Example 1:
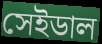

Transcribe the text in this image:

সেইডাল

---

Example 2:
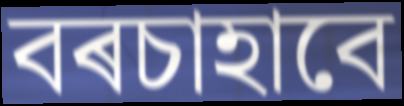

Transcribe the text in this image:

বৰচাহাবে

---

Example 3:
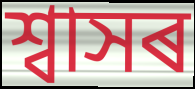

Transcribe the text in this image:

শ্বাসৰ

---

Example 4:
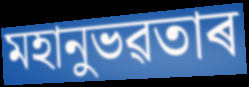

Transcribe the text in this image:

মহানুভৱতাৰ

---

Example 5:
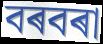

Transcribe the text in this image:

বৰবৰা